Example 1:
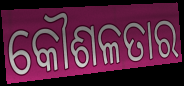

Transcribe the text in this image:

କୌଶଳତାର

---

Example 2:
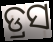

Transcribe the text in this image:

ଡ୍ରସ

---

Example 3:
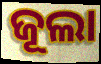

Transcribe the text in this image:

ଜୂଲା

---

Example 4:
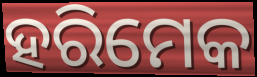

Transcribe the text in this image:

ହରିମେକ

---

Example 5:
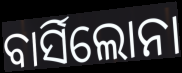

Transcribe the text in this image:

ବାର୍ସିଲୋନା